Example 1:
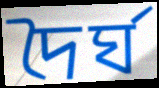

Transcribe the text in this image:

দৈৰ্ঘ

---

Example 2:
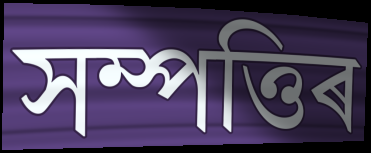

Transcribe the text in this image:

সম্পত্তিৰ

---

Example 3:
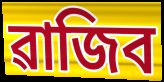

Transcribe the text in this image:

ৱাজিব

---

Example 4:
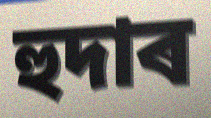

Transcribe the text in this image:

হুদাৰ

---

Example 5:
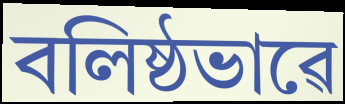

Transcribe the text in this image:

বলিষ্ঠভাৱে